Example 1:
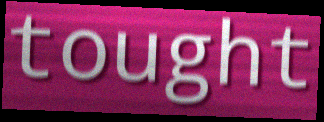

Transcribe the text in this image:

tought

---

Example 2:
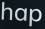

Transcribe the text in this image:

hap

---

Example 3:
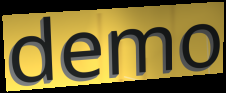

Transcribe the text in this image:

demo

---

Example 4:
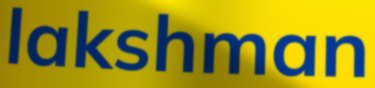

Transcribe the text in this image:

lakshman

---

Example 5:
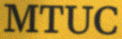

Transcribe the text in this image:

MTUC